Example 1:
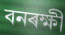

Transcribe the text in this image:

বনৰক্ষী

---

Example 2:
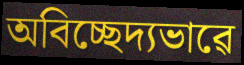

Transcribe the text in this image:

অবিচ্ছেদ্যভাৱে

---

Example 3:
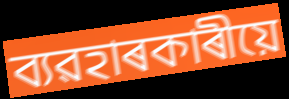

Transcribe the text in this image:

ব্যৱহাৰকাৰীয়ে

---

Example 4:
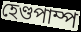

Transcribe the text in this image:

হেণ্ডপাম্প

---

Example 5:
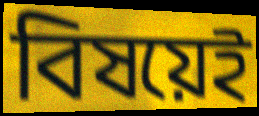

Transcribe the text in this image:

বিষয়েই